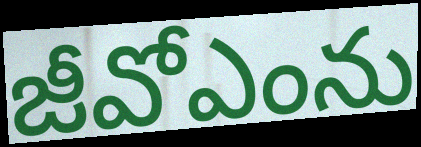
జీవోఎంను